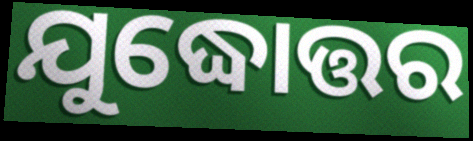
ଯୁଦ୍ଧୋତ୍ତର